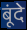
बूंदे